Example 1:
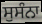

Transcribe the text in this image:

ਸੁਸੰਨਾ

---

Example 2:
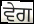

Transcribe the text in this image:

ਵੇਗ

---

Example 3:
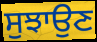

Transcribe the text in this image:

ਸੁਝਾਉਣ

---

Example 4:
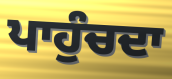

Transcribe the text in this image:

ਪਾਹੁੰਚਦਾ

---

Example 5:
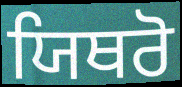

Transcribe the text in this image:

ਯਿਥਰੋ